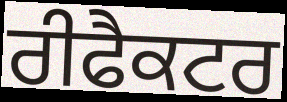
ਰੀਫੈਕਟਰ